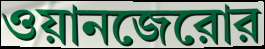
ওয়ানজেরোর